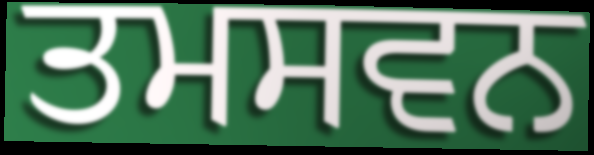
ਤਮਸਵਨ